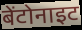
बेंटोनाइट